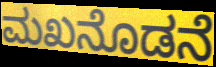
ಮಖನೊಡನೆ